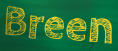
Breen